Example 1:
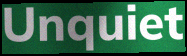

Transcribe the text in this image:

Unquiet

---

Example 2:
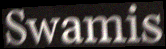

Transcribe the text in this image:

Swamis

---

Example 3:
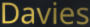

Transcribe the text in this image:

Davies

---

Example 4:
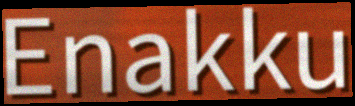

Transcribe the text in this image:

Enakku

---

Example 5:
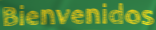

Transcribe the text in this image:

Bienvenidos